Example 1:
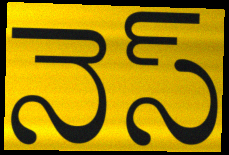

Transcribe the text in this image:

నెస్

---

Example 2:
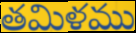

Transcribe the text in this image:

తమిళము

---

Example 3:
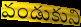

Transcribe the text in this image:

వండుకుని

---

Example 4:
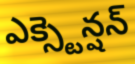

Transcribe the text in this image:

ఎక్స్టెన్షన్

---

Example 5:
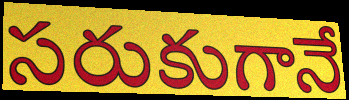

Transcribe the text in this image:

సరుకుగానే